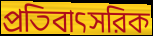
প্রতিবাৎসরিক